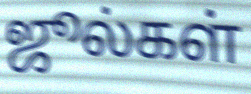
ஜூல்கள்